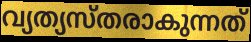
വ്യത്യസ്തരാകുന്നത്